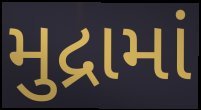
મુદ્રામાં